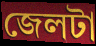
জেলটা